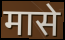
मासे